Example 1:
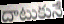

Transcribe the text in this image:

దాటుకునే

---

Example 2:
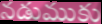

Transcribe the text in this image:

నడుముకు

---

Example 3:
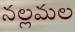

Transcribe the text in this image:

నల్లమల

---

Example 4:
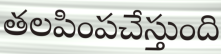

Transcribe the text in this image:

తలపింపచేస్తుంది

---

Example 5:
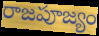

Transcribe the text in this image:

రాజపూజ్యం